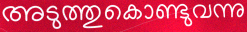
അടുത്തുകൊണ്ടുവന്നു